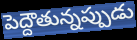
పెద్దౌతున్నప్పుడు